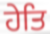
ਹੇਤਿ